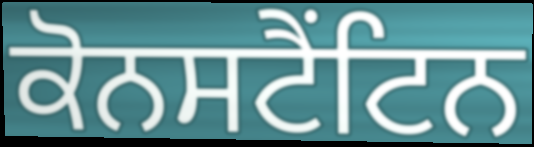
ਕੋਨਸਟੈਂਟਿਨ